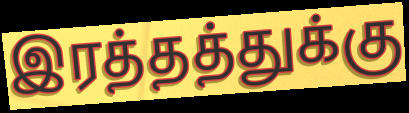
இரத்தத்துக்கு